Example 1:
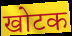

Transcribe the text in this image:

खोटक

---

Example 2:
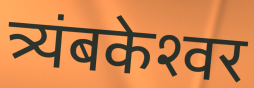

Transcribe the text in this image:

त्र्यंबकेश्वर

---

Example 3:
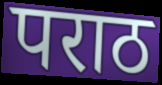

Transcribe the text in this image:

पराठ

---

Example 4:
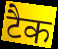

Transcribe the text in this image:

टैक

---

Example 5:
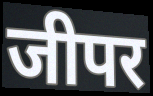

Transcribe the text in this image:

जीपर